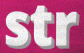
str